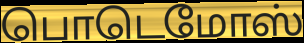
பொடெமோஸ்